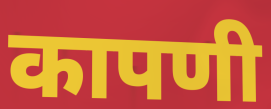
कापणी